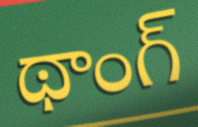
థాంగ్